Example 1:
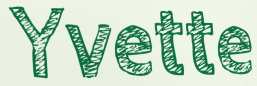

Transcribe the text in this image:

Yvette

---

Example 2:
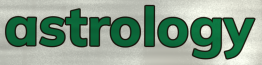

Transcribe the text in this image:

astrology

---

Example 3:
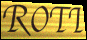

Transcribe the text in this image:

ROTI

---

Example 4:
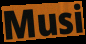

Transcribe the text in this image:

Musi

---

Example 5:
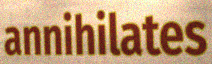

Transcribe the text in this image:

annihilates